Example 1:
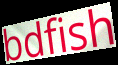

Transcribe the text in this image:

bdfish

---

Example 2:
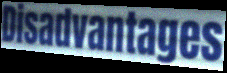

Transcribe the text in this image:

Disadvantages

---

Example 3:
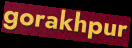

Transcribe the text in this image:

gorakhpur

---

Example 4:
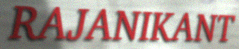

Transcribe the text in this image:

RAJANIKANT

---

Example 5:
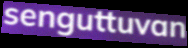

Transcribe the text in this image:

senguttuvan